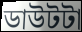
ডাউটটা